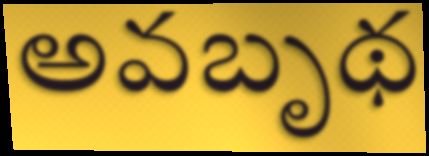
అవబృథ